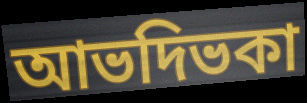
আভদিভকা